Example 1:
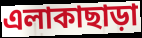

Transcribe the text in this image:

এলাকাছাড়া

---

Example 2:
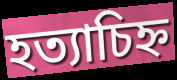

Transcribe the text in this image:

হত্যাচিহ্ন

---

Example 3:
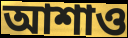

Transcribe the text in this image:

আশাও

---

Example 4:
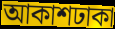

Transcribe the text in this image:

আকাশঢাকা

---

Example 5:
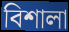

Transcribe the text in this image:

বিশালা